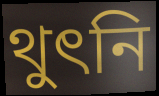
থুৎনি